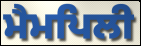
ਮੈਮਪਿਲੀ